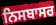
ਨਿਸਬਾਸਰ